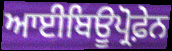
ਆਈਬਿਊਪ੍ਰੋਫ਼ੇਨ